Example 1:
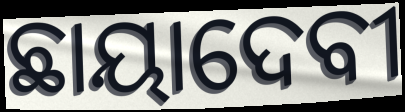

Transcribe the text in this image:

ଛାୟାଦେବୀ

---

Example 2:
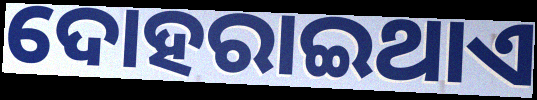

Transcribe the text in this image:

ଦୋହରାଇଥାଏ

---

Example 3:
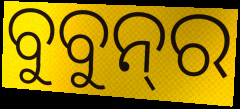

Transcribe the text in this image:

ବୁବୁନ୍‌ର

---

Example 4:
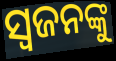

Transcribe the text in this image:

ସ୍ଵଜନଙ୍କୁ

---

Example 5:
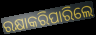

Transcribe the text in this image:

ରକ୍ଷାକରିପାରିଲେ